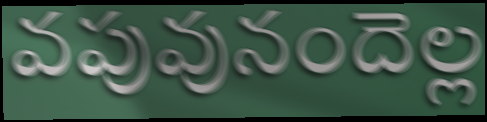
వపువునందెల్ల